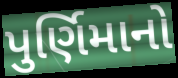
પુર્ણિમાનો